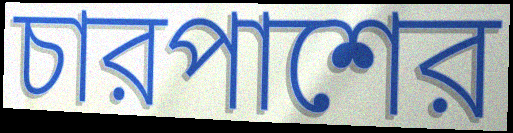
চারপাশের